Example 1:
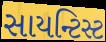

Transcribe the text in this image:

સાયન્ટિસ્ટ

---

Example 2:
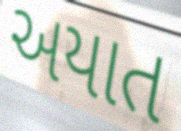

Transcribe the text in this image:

અયાત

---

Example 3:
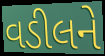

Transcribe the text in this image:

વડીલને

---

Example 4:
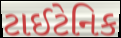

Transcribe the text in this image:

ટાઈટેનિક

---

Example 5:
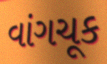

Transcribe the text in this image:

વાંગચૂક